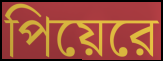
পিয়েরে